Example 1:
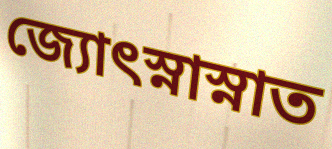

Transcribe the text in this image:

জ্যোৎস্নাস্নাত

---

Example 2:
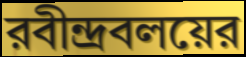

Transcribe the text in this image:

রবীন্দ্রবলয়ের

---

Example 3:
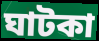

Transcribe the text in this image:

ঘাটকা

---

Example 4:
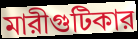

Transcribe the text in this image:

মারীগুটিকার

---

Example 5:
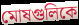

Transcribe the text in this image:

মোষগুলিকে